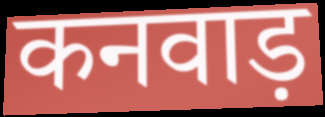
कनवाड़